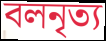
বলনৃত্য